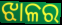
ଝାଳର